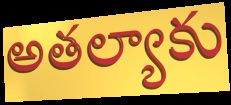
అతల్యాకు